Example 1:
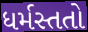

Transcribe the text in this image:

ધર્મસ્તતો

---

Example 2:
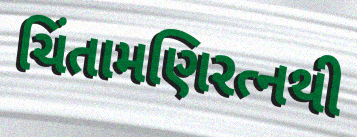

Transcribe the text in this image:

ચિંતામણિરત્નથી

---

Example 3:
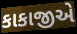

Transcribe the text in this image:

કાકાજીએ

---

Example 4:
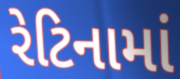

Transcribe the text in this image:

રેટિનામાં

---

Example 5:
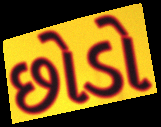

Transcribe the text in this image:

છોડો